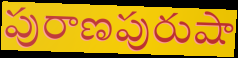
పురాణపురుషా